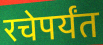
रचेपर्यंत